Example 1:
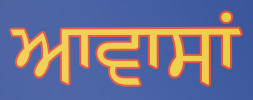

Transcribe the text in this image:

ਆਵਾਸਾਂ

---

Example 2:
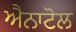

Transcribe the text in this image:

ਐਨਾਟੋਲ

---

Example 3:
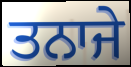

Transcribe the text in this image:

ਤਨਾਜੇ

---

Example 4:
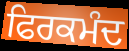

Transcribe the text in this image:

ਫਿਰਕਮੰਦ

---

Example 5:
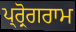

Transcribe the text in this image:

ਪ੍ਰ੍ਰੋਗਰਾਮ